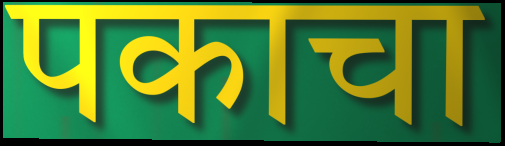
पकाचा